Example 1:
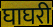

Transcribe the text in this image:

घाघरी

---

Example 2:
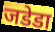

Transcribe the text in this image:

जडेडा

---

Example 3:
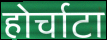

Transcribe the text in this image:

होर्चाटा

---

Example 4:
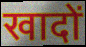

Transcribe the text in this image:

खादों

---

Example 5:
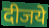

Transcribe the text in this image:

दीजये